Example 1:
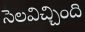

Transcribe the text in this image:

సెలవిచ్చింది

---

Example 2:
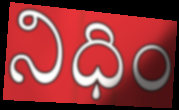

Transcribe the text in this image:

నిధిం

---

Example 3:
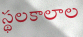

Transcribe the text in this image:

స్థలకాలాల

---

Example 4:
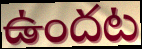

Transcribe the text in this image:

ఉందట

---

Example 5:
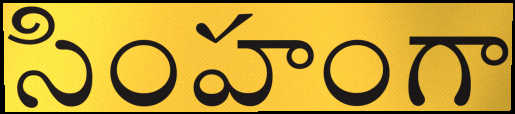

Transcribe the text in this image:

సింహంగా